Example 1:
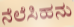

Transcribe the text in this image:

ನೆಲೆಸಿಹನು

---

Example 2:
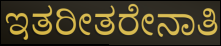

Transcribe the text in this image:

ಇತರೀತರೇನಾತಿ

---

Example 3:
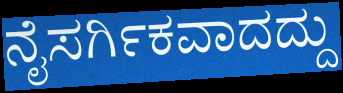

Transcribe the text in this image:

ನೈಸರ್ಗಿಕವಾದದ್ದು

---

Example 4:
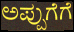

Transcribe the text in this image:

ಅಪ್ಪುಗೆಗೆ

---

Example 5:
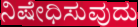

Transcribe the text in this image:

ನಿಷೇಧಿಸುವುದು